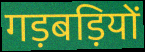
गड़बड़ियों